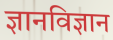
ज्ञानविज्ञान